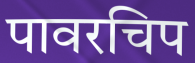
पावरचिप